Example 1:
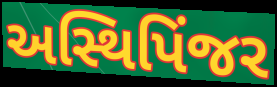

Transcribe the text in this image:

અસ્થિપિંજર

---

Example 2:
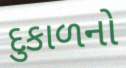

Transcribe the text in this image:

દુકાળનો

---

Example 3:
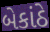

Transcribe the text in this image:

બેકાંઠે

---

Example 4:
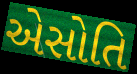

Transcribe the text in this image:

એસોતિ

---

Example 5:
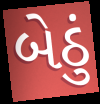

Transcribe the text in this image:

બેઠું